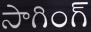
సాగింగ్